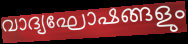
വാദ്യഘോഷങ്ങളും